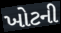
ખોટની